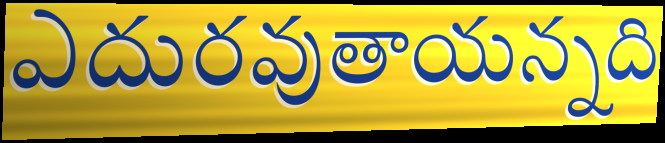
ఎదురవుతాయన్నది